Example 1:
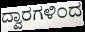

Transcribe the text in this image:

ದ್ವಾರಗಳಿಂದ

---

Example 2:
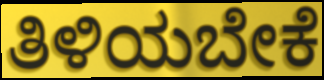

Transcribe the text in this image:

ತಿಳಿಯಬೇಕೆ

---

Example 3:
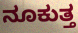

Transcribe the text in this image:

ನೂಕುತ್ತ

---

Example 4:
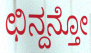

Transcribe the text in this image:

ಛಿನ್ದನ್ತೋ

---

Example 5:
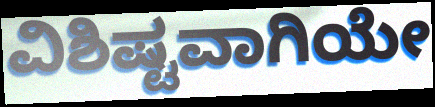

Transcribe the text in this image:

ವಿಶಿಷ್ಟವಾಗಿಯೇ